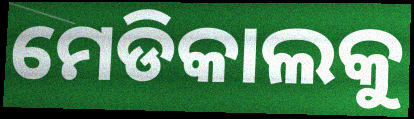
ମେଡିକାଲକୁ